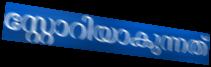
സ്റ്റോറിയാകുന്നത്